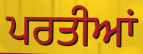
ਪਰਤੀਆਂ